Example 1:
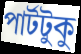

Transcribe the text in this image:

পার্টটুকু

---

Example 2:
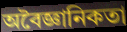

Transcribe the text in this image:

অবৈজ্ঞানিকতা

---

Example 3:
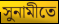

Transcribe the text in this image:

সুনামীতে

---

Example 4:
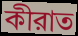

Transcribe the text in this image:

কীরাত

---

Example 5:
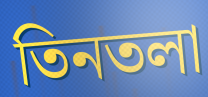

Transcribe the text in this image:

তিনতলা